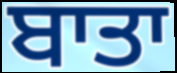
ਬਾਤਾ